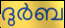
ദുർബ